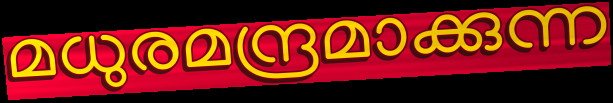
മധുരമന്ദ്രമാക്കുന്ന